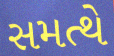
સમત્થે